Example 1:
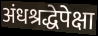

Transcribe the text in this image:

अंधश्रद्धेपेक्षा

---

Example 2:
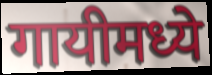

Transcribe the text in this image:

गायीमध्ये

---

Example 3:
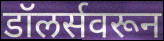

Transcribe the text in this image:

डॉलर्सवरून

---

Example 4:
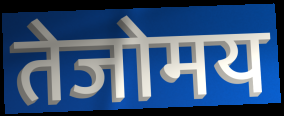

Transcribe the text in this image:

तेजोमय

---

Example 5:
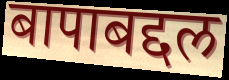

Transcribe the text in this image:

बापाबद्दल